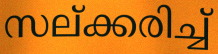
സല്ക്കരിച്ച്